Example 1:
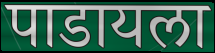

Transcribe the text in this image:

पाडायला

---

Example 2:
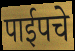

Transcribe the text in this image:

पाईपचे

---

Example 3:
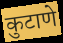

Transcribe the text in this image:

कुटाणे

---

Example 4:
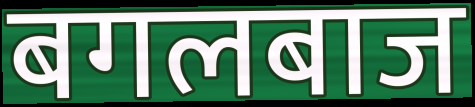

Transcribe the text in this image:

बगलबाज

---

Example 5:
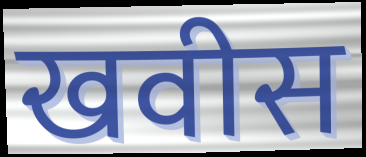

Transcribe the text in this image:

खवीस